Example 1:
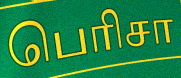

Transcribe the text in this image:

பெரிசா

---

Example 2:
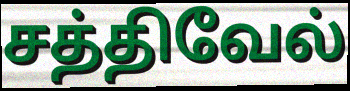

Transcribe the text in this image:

சத்திவேல்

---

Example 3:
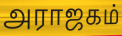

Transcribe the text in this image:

அராஜகம்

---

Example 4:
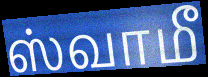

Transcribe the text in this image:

ஸ்வாமீ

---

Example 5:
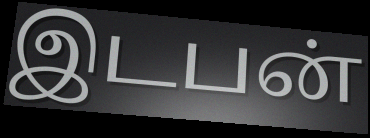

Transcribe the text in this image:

இடபன்